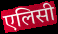
एलिसी